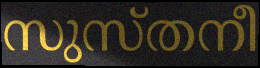
സുസ്തനീ